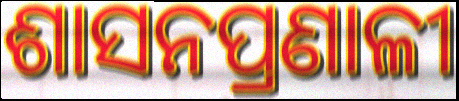
ଶାସନପ୍ରଣାଳୀ